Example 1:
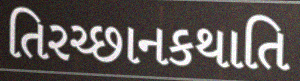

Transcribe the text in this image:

તિરચ્છાનકથાતિ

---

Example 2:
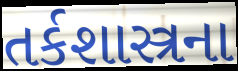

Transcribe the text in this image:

તર્કશાસ્ત્રના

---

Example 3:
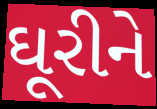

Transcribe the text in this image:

ઘૂરીને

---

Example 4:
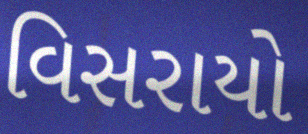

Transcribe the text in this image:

વિસરાયો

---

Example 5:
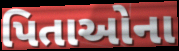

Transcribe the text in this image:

પિતાઓના